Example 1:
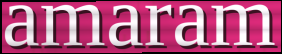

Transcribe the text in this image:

amaram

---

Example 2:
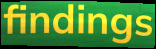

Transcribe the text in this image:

findings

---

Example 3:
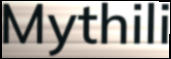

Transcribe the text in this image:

Mythili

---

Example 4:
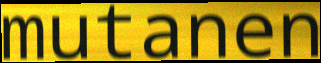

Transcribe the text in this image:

mutanen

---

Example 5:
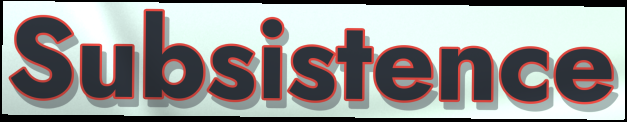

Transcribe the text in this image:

Subsistence